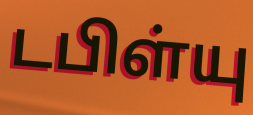
டபிள்யு